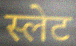
स्लेट